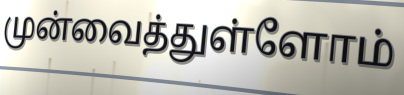
முன்வைத்துள்ளோம்